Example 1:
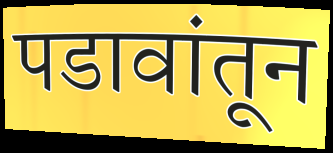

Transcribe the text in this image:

पडावांतून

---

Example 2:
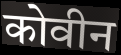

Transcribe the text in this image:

कोवीन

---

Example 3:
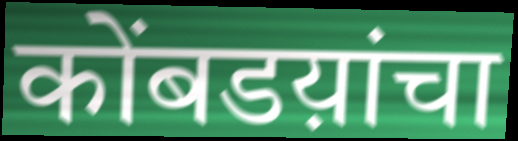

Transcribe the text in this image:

कोंबडय़ांचा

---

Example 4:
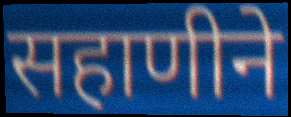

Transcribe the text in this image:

सहाणीने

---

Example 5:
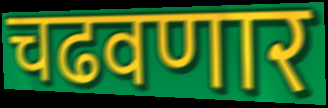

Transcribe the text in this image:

चढवणार